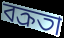
বক্ৰতা